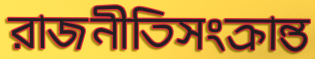
রাজনীতিসংক্রান্ত